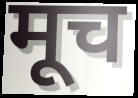
मूच